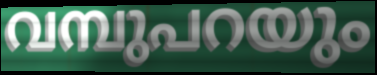
വമ്പുപറയും